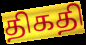
திகதி